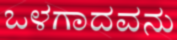
ಒಳಗಾದವನು